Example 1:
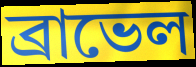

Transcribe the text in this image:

ব্রাভেল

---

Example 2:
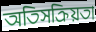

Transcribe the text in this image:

অতিসক্রিয়তা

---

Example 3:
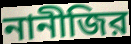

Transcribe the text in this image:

নানীজির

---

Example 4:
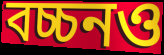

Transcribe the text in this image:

বচ্চনও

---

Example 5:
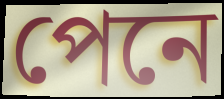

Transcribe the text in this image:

পেনে